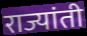
राज्यांती